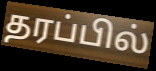
தரப்பில்